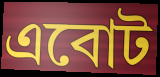
এবোট